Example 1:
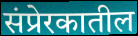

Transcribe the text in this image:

संप्रेरकातील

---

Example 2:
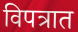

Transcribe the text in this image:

विपत्रात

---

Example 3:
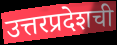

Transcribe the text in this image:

उत्तरप्रदेशची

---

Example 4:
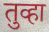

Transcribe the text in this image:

तुव्हा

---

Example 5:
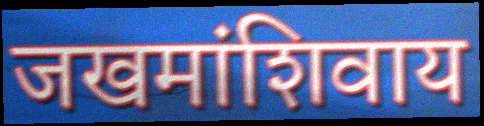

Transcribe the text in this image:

जखमांशिवाय